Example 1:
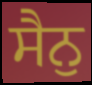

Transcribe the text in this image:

ਸੈਨੁ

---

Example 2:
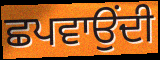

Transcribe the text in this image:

ਛਪਵਾਉਂਦੀ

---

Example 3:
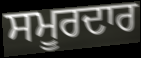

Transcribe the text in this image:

ਸਮੂਰਦਾਰ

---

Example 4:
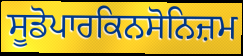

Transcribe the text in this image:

ਸੂਡੋਪਾਰਕਿਨਸੋਨਿਜ਼ਮ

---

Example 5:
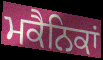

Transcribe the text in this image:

ਮਕੈਨਿਕਾਂ